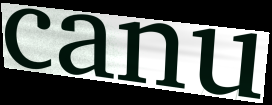
canu